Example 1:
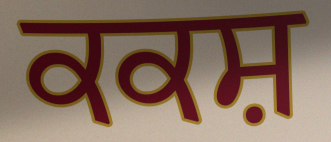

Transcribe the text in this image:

ਕਕਸ਼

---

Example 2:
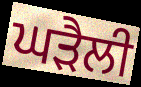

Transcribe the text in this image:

ਘੜੈਲੀ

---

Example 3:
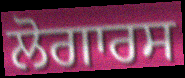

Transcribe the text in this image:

ਲੋਗਾਰਸ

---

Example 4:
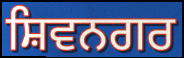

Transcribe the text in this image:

ਸ਼ਿਵਨਗਰ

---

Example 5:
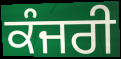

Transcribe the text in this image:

ਕੰਜਰੀ